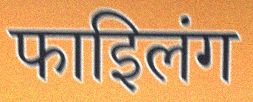
फाइिलंग